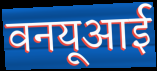
वनयूआई